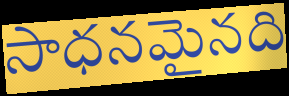
సాధనమైనది